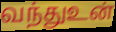
வந்துஉன்